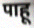
पाहू